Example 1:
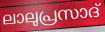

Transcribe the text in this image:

ലാലുപ്രസാദ്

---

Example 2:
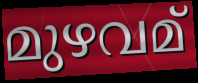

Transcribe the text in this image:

മുഴവമ്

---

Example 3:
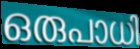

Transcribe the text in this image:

ഒരുപാധി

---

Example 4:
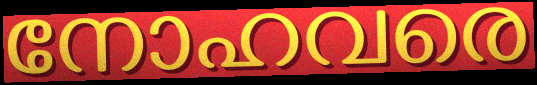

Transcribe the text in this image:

നോഹവരെ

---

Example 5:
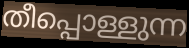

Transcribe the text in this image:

തീപ്പൊള്ളുന്ന